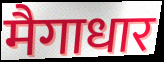
मैगाधार